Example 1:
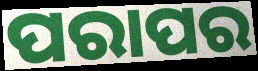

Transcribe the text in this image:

ପରାପର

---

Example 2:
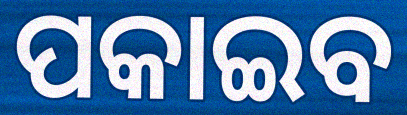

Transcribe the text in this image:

ପକାଇବ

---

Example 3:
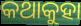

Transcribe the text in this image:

କଥାକୁହା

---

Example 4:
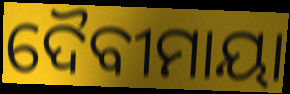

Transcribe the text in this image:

ଦୈବୀମାୟା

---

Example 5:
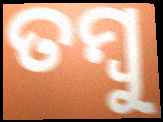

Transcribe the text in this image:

ତମ୍ବୁ